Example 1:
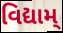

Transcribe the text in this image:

વિદ્યામ્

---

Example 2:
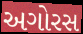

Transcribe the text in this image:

અગોરસ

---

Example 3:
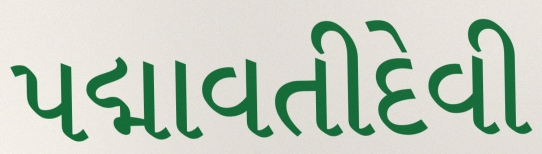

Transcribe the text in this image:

પદ્માવતીદેવી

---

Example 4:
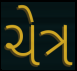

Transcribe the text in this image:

ચેત્ર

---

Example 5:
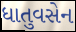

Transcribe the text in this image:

ધાતુવસેન